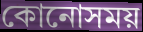
কোনোসময়